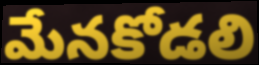
మేనకోడలి